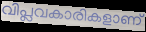
വിപ്ലവകാരികളാണ്